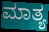
ಮಾತ್ಯ